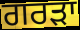
ਗਰੜਾ